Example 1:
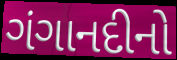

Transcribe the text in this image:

ગંગાનદીનો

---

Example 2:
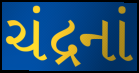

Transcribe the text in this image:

ચંદ્રનાં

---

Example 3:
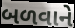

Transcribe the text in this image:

બળવાને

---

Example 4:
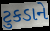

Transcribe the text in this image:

ટુકડાને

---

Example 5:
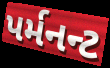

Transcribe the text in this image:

પર્મનન્ટ